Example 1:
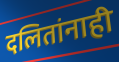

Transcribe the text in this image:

दलितांनाही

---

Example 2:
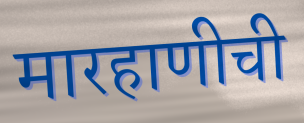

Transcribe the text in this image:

मारहाणीची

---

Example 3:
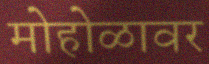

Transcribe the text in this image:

मोहोळावर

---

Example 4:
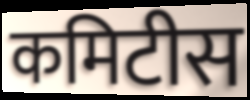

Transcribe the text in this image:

कमिटीस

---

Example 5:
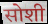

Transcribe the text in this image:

सोशी